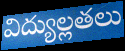
విద్యుల్లతలు